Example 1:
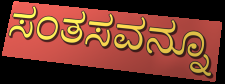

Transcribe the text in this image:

ಸಂತಸವನ್ನೂ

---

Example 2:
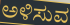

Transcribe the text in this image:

ಅಳಿಸುವ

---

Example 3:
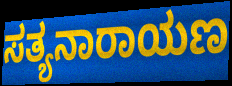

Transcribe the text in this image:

ಸತ್ಯನಾರಾಯಣ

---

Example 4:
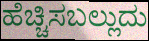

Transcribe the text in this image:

ಹೆಚ್ಚಿಸಬಲ್ಲುದು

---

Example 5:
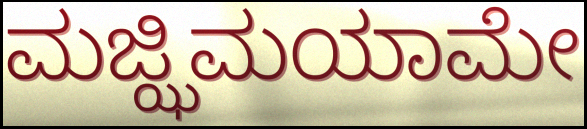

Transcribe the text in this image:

ಮಜ್ಝಿಮಯಾಮೇ